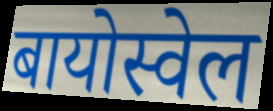
बायोस्वेल